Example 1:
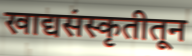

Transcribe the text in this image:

खाद्यसंस्कृतीतून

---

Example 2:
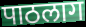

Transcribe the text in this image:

पाठलाग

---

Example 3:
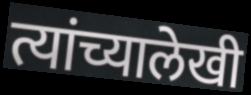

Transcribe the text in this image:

त्यांच्यालेखी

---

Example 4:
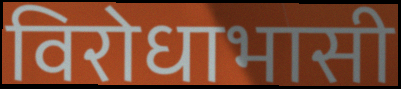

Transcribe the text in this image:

विरोधाभासी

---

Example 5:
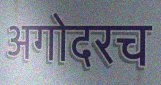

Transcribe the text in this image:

अगोदरच